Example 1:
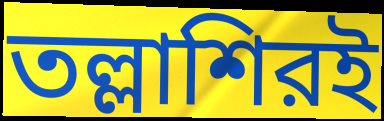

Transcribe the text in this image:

তল্লাশিরই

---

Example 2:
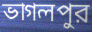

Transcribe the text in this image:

ভাগলপুর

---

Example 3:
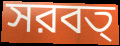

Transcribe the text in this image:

সরবত্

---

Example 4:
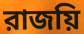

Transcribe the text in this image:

রাজয়ি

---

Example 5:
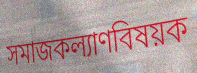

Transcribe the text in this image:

সমাজকল্যাণবিষয়ক